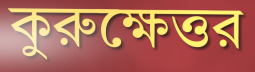
কুরুক্ষেত্তর